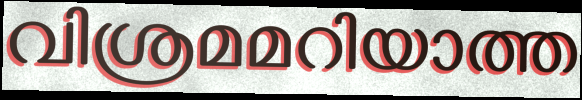
വിശ്രമമറിയാത്ത